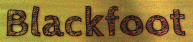
Blackfoot